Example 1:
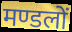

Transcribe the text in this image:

मण्‍डलों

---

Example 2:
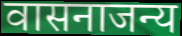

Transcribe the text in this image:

वासनाजन्य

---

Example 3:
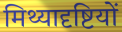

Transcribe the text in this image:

मिथ्यादृष्टियों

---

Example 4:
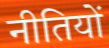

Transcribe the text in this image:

नीतियों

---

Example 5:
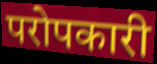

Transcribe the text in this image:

परोपकारी